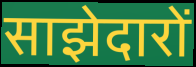
साझेदारों